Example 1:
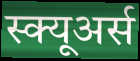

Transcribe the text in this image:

स्क्यूअर्स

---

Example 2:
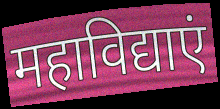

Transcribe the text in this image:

महाविद्याएं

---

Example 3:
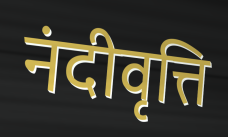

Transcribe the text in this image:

नंदीवृत्ति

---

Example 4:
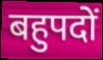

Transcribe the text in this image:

बहुपदों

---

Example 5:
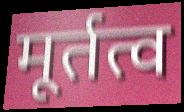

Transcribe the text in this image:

मूर्तत्व